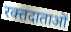
रक्तदाताओं